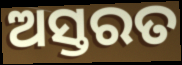
ଅସ୍ତରତ